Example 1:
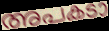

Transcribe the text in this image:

അപകടാ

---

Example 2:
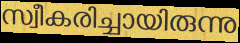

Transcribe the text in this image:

സ്വീകരിച്ചായിരുന്നു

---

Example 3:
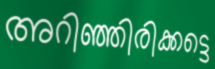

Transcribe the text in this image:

അറിഞ്ഞിരിക്കട്ടെ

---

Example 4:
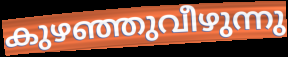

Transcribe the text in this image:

കുഴഞ്ഞുവീഴുന്നു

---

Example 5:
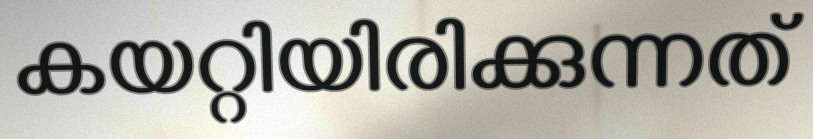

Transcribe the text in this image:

കയറ്റിയിരിക്കുന്നത്